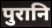
पुरानि